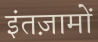
इंतज़ामों